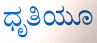
ಧೃತಿಯೂ